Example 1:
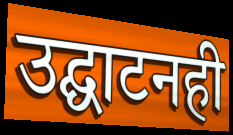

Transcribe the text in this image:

उद्घाटनही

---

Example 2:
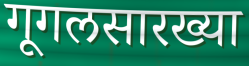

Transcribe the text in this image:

गूगलसारख्या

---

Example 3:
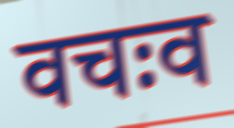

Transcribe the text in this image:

वचःव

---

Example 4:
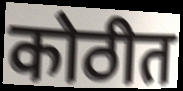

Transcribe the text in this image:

कोठीत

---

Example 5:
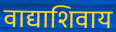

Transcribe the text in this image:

वाद्याशिवाय